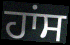
ਹਾਂਸ